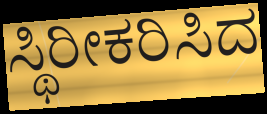
ಸ್ಥಿರೀಕರಿಸಿದ